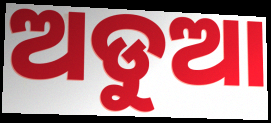
ଅଡୁଆ